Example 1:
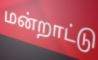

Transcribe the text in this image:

மன்றாட்டு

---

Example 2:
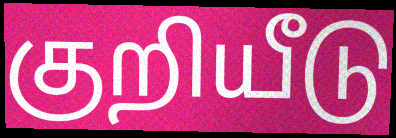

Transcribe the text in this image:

குறியீடு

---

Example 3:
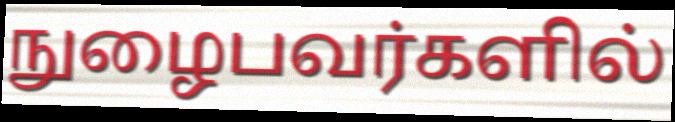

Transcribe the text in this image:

நுழைபவர்களில்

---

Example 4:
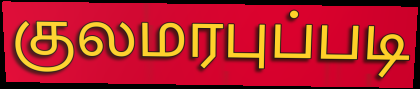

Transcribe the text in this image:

குலமரபுப்படி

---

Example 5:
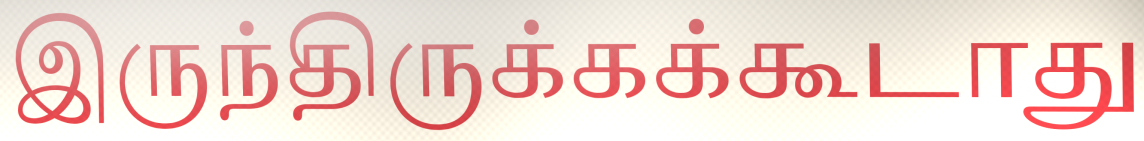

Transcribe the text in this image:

இருந்திருக்கக்கூடாது